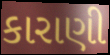
કારાણી